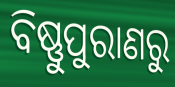
ବିଷ୍ଣୁପୁରାଣରୁ